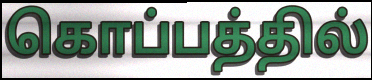
கொப்பத்தில்